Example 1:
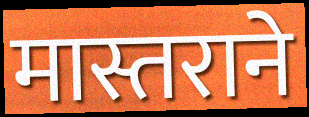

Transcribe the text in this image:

मास्तराने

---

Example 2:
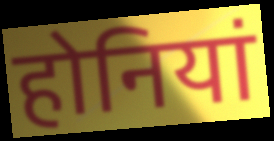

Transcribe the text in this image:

होनियां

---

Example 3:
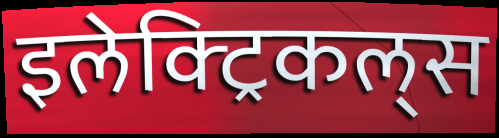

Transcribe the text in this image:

इलेक्ट्रिकल्स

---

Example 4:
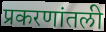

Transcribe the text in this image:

प्रकरणांतली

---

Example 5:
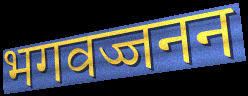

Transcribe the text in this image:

भगवज्जनन